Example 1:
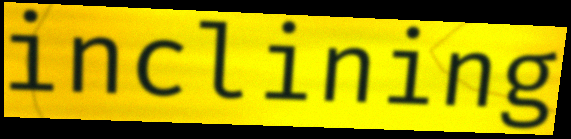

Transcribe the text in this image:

inclining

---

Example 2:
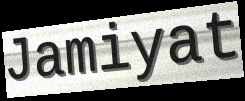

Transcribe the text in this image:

Jamiyat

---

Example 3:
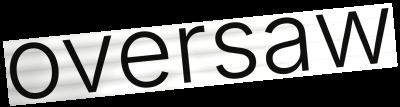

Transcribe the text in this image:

oversaw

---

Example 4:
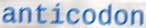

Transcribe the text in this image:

anticodon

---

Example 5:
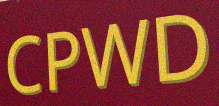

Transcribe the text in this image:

CPWD